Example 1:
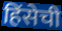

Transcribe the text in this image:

हिंसेची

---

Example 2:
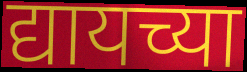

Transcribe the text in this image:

द्यायच्या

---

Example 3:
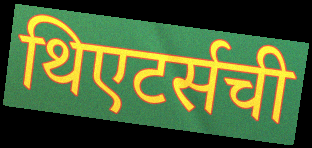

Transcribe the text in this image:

थिएटर्सची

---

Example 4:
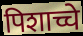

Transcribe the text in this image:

पिशाच्चे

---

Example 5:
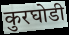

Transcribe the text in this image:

कुरघोडी